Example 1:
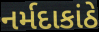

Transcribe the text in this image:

નર્મદાકાંઠે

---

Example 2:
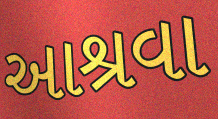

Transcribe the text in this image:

આશ્રવા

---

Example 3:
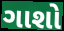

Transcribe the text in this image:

ગાશો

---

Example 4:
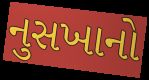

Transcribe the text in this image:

નુસખાનો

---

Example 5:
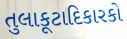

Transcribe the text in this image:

તુલાકૂટાદિકારકો